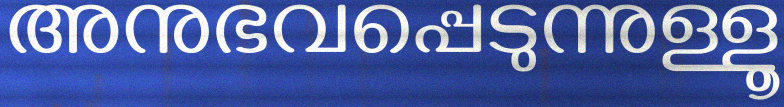
അനുഭവപ്പെടുന്നുള്ളൂ